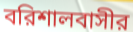
বরিশালবাসীর